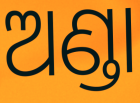
ଅଣ୍ଡା